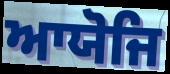
ਆਯੋਜਿ